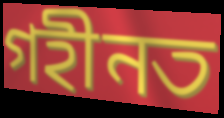
গহীনত